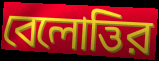
বেলোত্তির